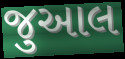
જુઆલ